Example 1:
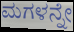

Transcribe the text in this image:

ಮಗಳನ್ನೇ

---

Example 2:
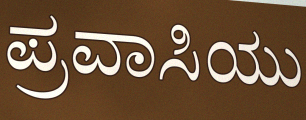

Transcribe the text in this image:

ಪ್ರವಾಸಿಯು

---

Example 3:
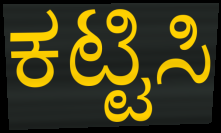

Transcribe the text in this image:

ಕಟ್ಟಿಸಿ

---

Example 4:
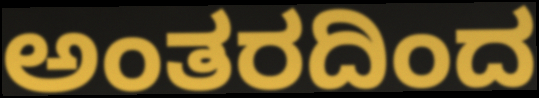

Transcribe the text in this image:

ಅಂತರದಿಂದ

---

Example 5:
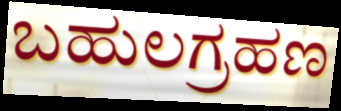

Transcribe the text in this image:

ಬಹುಲಗ್ರಹಣ